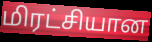
மிரட்சியான